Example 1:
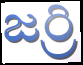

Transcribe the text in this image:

జర్రి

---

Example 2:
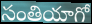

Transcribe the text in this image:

సంతియాగో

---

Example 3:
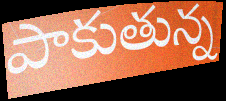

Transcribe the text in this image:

పాకుతున్న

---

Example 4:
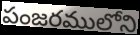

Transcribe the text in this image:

పంజరములోని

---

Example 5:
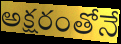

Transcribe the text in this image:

అక్షరంతోనే